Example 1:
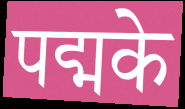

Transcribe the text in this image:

पद्मके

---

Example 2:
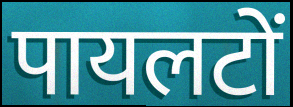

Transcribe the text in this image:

पायलटों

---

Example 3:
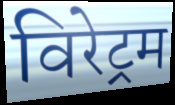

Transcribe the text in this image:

विरेट्रम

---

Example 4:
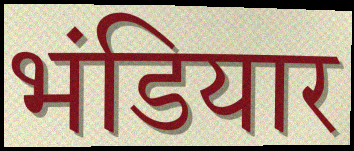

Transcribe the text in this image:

भंडियार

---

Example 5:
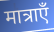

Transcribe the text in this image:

मात्राएँ